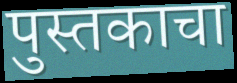
पुस्तकाचा